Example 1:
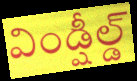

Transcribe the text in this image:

విండ్షీల్డ్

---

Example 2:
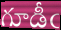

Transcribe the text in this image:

గూడీఁ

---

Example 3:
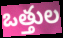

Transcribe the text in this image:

ఒత్తుల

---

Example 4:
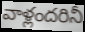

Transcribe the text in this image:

వాళ్లందరినీ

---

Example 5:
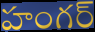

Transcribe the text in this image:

హంగర్